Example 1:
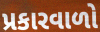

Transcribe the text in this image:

પ્રકારવાળો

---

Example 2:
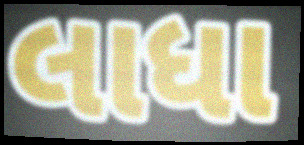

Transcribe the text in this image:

લાધા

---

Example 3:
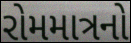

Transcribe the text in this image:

રોમમાત્રનો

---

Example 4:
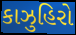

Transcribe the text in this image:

કાઝુહિરો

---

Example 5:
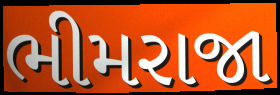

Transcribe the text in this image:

ભીમરાજા